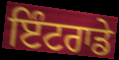
ਇੰਟਰਾਡੇ